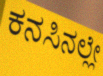
ಕನಸಿನಲ್ಲೇ